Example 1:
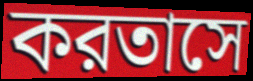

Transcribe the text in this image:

করতাসে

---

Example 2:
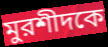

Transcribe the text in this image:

মুরশীদকে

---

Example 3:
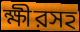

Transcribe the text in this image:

ক্ষীরসহ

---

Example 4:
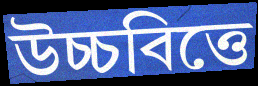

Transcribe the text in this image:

উচ্চবিত্তে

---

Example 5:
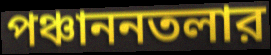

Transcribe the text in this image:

পঞ্চাননতলার